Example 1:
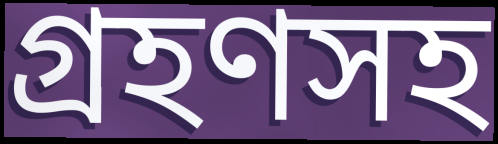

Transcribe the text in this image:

গ্রহণসহ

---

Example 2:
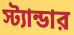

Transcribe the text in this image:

স্ট্যান্ডার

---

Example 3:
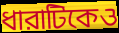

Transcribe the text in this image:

ধারাটিকেও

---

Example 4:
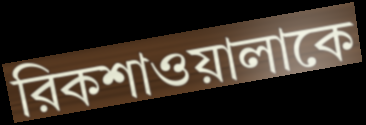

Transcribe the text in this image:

রিকশাওয়ালাকে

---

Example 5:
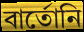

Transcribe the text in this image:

বার্তোনি